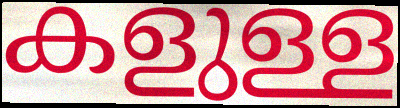
കളുള്ള